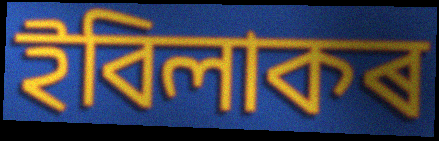
ইবিলাকৰ